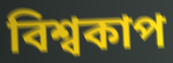
বিশ্বকাপ